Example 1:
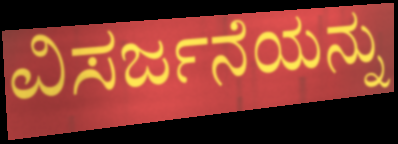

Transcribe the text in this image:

ವಿಸರ್ಜನೆಯನ್ನು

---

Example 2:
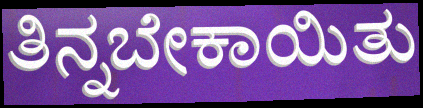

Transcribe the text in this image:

ತಿನ್ನಬೇಕಾಯಿತು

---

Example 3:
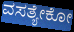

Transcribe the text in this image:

ವಸತ್ಯೇಕೋ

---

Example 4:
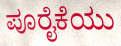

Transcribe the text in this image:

ಪೂರೈಕೆಯು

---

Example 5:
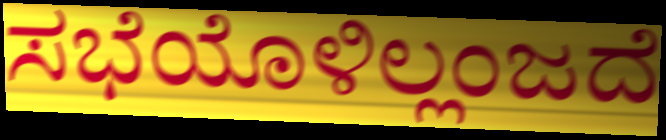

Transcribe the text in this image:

ಸಭೆಯೊಳಿಲ್ಲಂಜದೆ